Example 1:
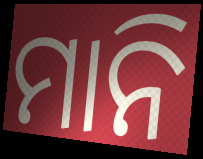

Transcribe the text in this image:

ମାନି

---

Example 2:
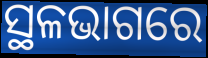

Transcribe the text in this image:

ସ୍ଥଳଭାଗରେ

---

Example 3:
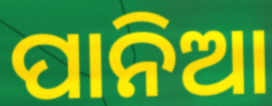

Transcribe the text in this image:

ପାନିଆ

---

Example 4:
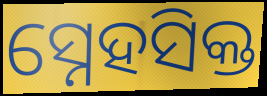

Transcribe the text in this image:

ସ୍ନେହସିକ୍ତ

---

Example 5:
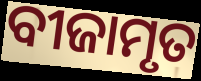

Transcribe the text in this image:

ବୀଜାମୃତ